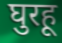
घुरहू